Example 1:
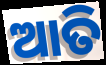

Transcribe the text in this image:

ଆତି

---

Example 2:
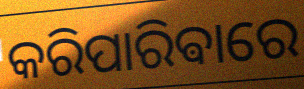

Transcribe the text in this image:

କରିପାରିଵାରେ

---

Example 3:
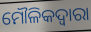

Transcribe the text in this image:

ମୌଳିକଦ୍ଵାରା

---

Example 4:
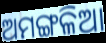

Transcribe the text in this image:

ଅମଙ୍ଗଳିଆ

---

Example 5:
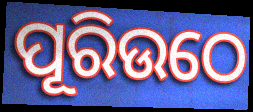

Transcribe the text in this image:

ପୂରିଉଠେ